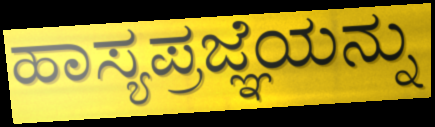
ಹಾಸ್ಯಪ್ರಜ್ಞೆಯನ್ನು